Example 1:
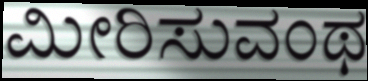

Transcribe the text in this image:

ಮೀರಿಸುವಂಥ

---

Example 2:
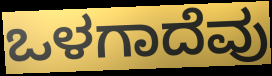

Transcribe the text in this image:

ಒಳಗಾದೆವು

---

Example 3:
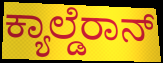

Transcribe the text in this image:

ಕ್ಯಾಲ್ಡೆರಾನ್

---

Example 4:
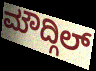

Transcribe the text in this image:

ಮೌದ್ಗಿಲ್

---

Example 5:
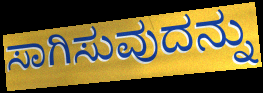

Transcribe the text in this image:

ಸಾಗಿಸುವುದನ್ನು